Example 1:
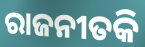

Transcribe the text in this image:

ରାଜନୀତକି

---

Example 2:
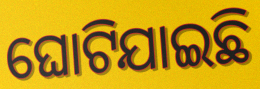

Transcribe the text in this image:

ଘୋଟିଯାଇଛି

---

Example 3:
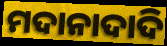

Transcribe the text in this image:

ମଦାନାଦାଦି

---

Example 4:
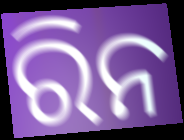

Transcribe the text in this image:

ରିନ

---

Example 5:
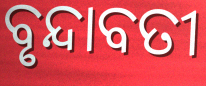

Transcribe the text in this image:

ବୃନ୍ଦାବତୀ